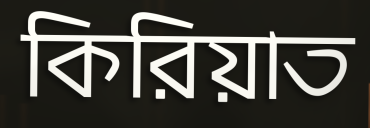
কিরিয়াত